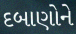
દબાણોને